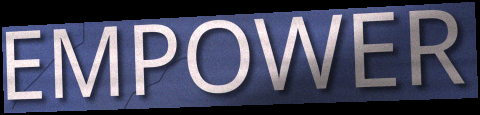
EMPOWER